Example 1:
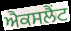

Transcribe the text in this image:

ਐਕਸਲੈਂਟ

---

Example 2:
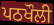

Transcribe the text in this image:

ਪਠਖੌਲੀ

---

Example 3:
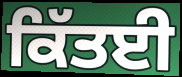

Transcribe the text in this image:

ਕਿੱਤਈ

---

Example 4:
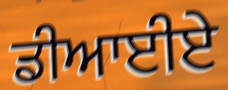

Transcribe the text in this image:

ਡੀਆਈਏ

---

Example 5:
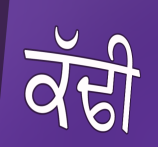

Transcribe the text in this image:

ਕੱਢੀ